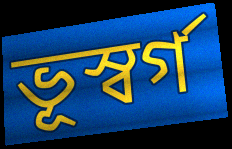
ভূস্বর্গ